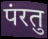
पंरतु